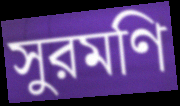
সুরমণি